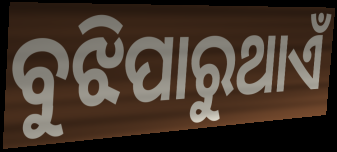
ବୁଝିପାରୁଥାଏଁ